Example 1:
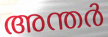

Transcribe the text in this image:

അന്തർ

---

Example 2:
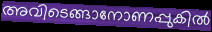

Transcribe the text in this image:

അവിടെങ്ങാനോണപ്പുകിൽ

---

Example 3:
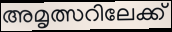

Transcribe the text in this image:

അമൃത്സറിലേക്ക്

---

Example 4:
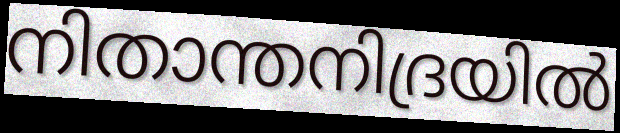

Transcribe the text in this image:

നിതാന്തനിദ്രയിൽ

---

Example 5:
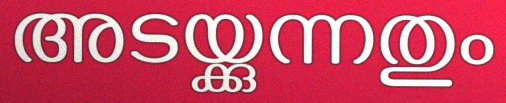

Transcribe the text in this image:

അടയ്ക്കുന്നതും